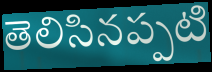
తెలిసినప్పటి